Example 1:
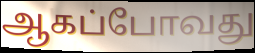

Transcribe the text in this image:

ஆகப்போவது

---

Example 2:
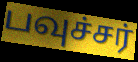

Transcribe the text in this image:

பவுச்சர்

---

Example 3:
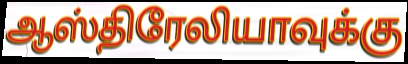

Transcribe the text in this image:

ஆஸ்திரேலியாவுக்கு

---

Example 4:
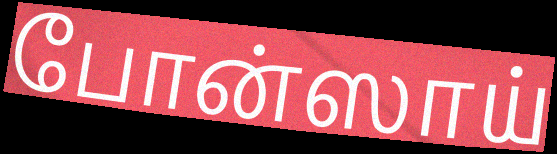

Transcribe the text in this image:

போன்ஸாய்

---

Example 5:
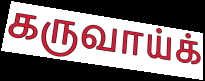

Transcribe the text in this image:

கருவாய்க்